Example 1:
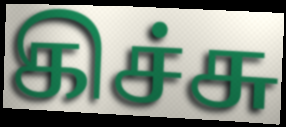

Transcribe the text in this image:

கிச்சு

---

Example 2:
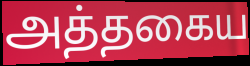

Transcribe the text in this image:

அத்தகைய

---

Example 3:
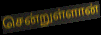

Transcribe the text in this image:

சென்றுள்ளான்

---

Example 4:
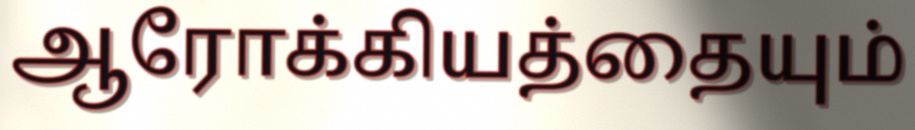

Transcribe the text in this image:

ஆரோக்கியத்தையும்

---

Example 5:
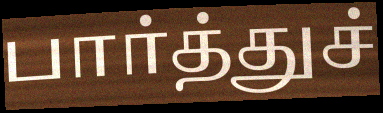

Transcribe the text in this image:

பார்த்துச்